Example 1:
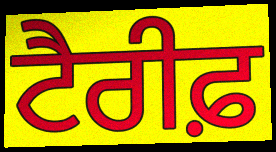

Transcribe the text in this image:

ਟੈਰੀਫ਼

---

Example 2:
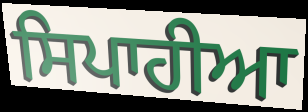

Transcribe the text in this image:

ਸਿਪਾਹੀਆ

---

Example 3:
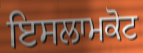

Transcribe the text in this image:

ਇਸਲਾਮਕੋਟ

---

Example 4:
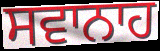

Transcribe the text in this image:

ਸਵਾਨਾਹ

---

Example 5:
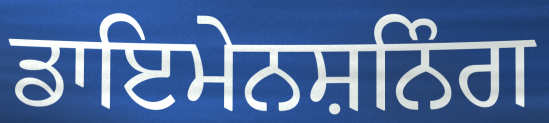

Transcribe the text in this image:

ਡਾਇਮੇਨਸ਼ਨਿੰਗ